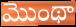
మొంథా